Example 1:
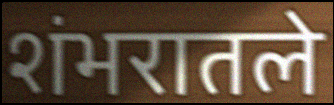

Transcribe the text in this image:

शंभरातले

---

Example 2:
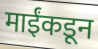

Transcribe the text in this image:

माईंकडून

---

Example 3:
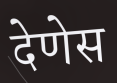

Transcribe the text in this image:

देणेस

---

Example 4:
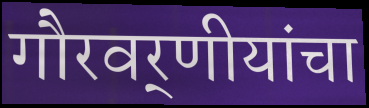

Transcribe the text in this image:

गौरवर्णीयांचा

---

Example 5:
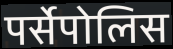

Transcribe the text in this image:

पर्सेपोलिस